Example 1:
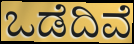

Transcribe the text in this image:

ಒಡೆದಿವೆ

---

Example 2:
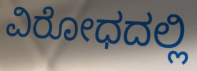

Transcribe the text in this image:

ವಿರೋಧದಲ್ಲಿ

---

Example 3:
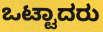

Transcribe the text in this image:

ಒಟ್ಟಾದರು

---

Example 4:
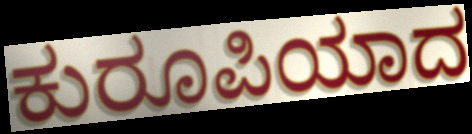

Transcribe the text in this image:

ಕುರೂಪಿಯಾದ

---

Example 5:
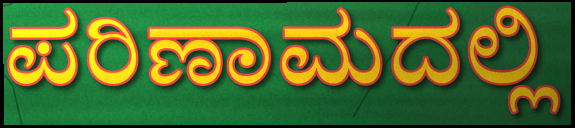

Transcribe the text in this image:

ಪರಿಣಾಮದಲ್ಲಿ